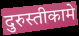
दुरुस्तीकामे